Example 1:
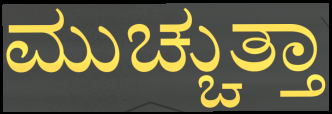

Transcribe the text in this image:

ಮುಚ್ಚುತ್ತಾ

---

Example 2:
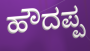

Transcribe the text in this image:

ಹೌದಪ್ಪ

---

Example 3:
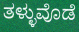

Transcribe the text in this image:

ತಳ್ಳುವೊಡೆ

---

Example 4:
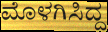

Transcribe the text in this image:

ಮೊಳಗಿಸಿದ್ದ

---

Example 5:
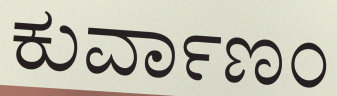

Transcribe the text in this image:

ಕುರ್ವಾಣಂ